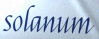
solanum